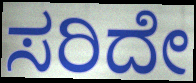
ಸರಿದೇ